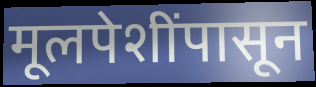
मूलपेशींपासून